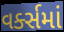
વર્ક્સમાં